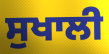
ਸੁਖਾਲੀ